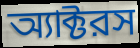
অ্যাক্টরস